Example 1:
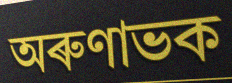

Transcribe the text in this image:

অৰুণাভক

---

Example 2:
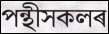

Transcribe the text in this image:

পন্থীসকলৰ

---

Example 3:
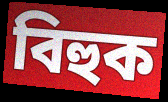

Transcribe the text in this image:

বিহুক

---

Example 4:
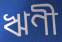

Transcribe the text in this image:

ঋণী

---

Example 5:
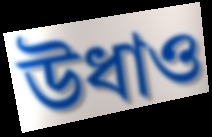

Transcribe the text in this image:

উধাও